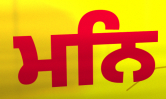
ਮਨਿ